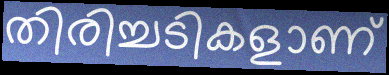
തിരിച്ചടികളാണ്